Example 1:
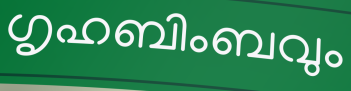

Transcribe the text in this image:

ഗൃഹബിംബവും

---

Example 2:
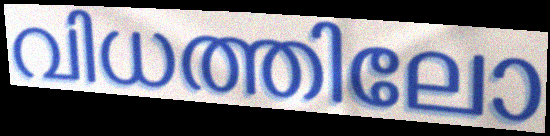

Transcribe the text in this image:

വിധത്തിലോ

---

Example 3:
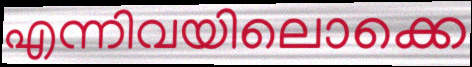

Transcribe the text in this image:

എന്നിവയിലൊക്കെ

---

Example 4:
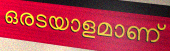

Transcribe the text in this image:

ഒരടയാളമാണ്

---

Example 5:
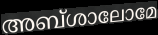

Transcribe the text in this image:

അബ്ശാലോമേ